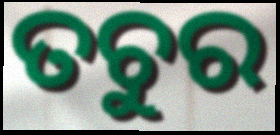
ତଚୁର